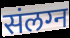
संलग्‍न